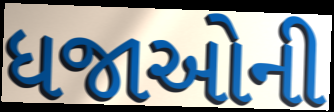
ધજાઓની